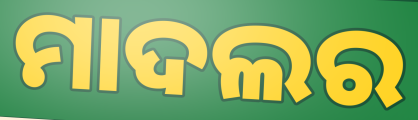
ମାଦଲର